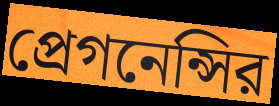
প্রেগনেন্সির